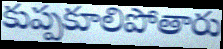
కుప్పకూలిపోతారు